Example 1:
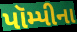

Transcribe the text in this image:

પૉમ્પીના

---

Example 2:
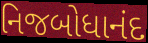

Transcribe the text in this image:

નિજબોધાનંદ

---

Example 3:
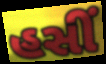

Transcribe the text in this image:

હસીં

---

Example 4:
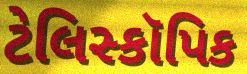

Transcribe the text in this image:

ટેલિસ્કૉપિક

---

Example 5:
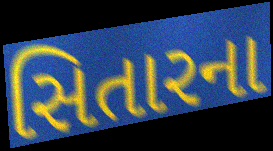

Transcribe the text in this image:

સિતારના